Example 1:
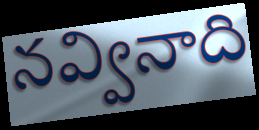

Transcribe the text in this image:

నవ్వినాది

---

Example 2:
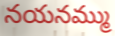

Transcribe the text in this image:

నయనమ్ము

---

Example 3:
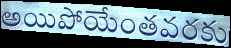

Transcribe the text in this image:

అయిపోయేంతవరకు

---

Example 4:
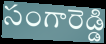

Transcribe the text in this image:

సంగారెడ్డి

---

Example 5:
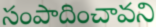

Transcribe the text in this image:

సంపాదించావని